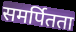
समर्पितता